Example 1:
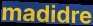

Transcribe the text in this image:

madidre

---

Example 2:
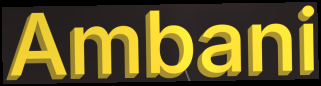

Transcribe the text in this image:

Ambani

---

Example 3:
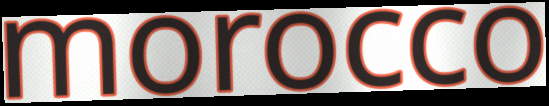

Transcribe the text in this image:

morocco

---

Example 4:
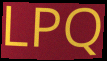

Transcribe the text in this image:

LPQ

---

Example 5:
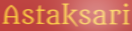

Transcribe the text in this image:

Astaksari